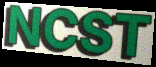
NCST